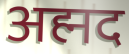
अह्मद